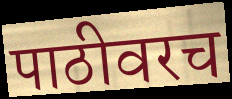
पाठीवरच